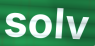
solv